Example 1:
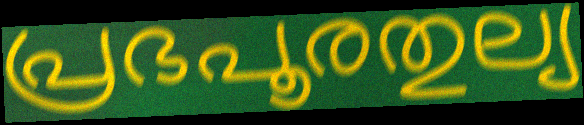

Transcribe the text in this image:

പ്രഭപൂരതുല്യ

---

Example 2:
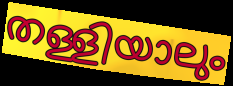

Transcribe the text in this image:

തള്ളിയാലും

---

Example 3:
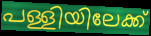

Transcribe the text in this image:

പള്ളിയിലേക്ക്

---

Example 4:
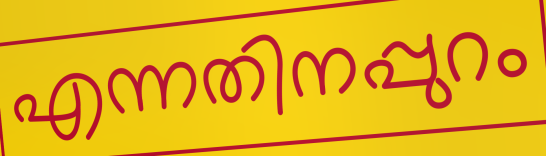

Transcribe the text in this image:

എന്നതിനപ്പുറം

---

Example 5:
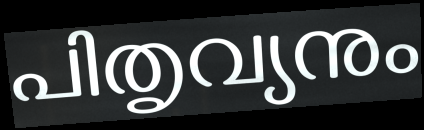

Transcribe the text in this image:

പിതൃവ്യനും